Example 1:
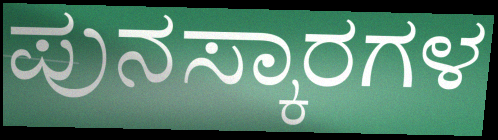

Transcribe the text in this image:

ಪುನಸ್ಕಾರಗಳ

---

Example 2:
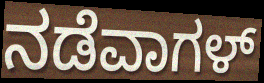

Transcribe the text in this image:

ನಡೆವಾಗಳ್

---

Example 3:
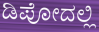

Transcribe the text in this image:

ಡಿಪೋದಲ್ಲಿ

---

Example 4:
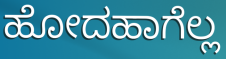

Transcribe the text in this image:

ಹೋದಹಾಗೆಲ್ಲ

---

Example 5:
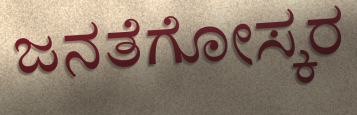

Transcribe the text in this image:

ಜನತೆಗೋಸ್ಕರ